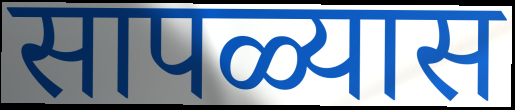
सापळ्यास